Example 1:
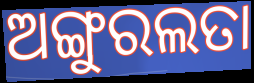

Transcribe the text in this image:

ଅଙ୍ଗୁରଲତା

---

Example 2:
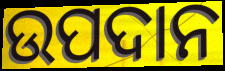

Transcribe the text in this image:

ଉପଦାନ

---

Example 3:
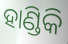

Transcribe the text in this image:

ହାଣ୍ଡିକି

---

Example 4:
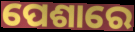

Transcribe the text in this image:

ପେଶାରେ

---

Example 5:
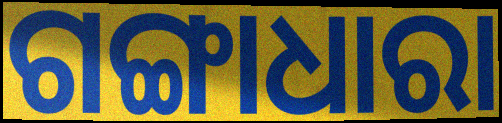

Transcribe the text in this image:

ଗଙ୍ଗାଧାରା